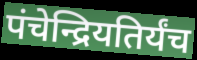
पंचेन्द्रियतिर्यंच